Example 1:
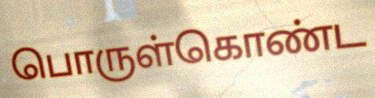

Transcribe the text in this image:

பொருள்கொண்ட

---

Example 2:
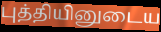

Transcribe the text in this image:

புத்தியினுடைய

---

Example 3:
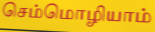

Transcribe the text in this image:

செம்மொழியாம்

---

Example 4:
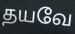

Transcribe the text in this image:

தயவே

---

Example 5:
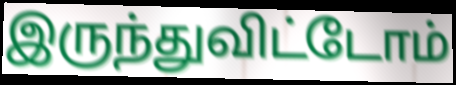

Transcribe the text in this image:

இருந்துவிட்டோம்